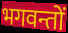
भगवन्तों